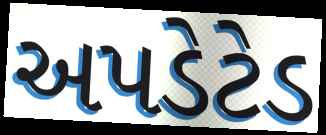
અપડેટેડ